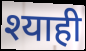
श्याही